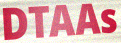
DTAAs